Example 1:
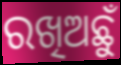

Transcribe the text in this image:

ରଖିଅଛୁଁ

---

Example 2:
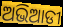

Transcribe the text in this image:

ଅଭିଆଡୀ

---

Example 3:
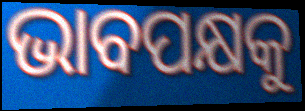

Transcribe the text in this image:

ଭାବପକ୍ଷକୁ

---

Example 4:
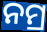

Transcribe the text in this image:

ନମ୍ର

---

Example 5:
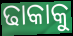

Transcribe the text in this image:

ଢାକାକୁ